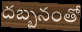
దబ్బనంతో